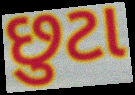
છુટા